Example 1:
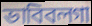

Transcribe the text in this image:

ভাবিবলগা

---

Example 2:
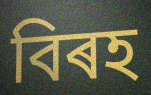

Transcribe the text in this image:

বিৰহ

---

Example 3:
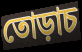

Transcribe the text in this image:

তোড়াচ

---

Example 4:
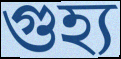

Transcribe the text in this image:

গুহ্য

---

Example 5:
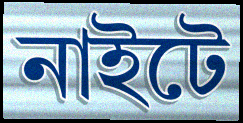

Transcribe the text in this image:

নাইটে